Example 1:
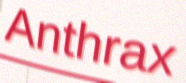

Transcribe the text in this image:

Anthrax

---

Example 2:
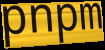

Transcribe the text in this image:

pnpm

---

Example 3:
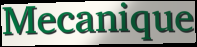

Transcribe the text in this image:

Mecanique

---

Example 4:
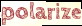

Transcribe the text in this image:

polarize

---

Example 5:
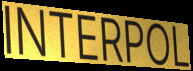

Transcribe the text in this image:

INTERPOL